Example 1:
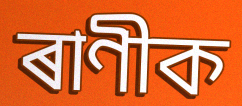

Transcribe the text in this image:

ৰাণীক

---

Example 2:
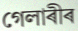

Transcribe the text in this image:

গেলাৰীৰ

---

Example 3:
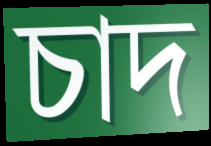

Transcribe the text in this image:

চাদ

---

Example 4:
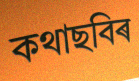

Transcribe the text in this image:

কথাছবিৰ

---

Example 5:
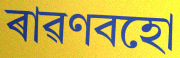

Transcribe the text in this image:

ৰাৱণবহো